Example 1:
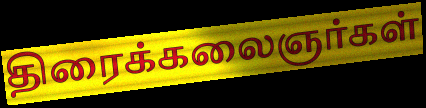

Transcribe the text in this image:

திரைக்கலைஞர்கள்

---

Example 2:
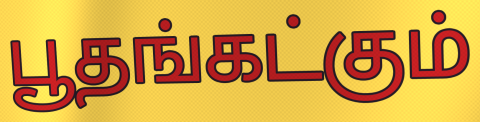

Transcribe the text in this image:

பூதங்கட்கும்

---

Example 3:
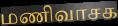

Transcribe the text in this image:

மணிவாசக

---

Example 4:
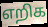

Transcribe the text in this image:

எறிக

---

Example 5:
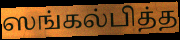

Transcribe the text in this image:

ஸங்கல்பித்த